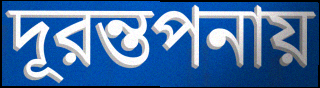
দূরন্তপনায়